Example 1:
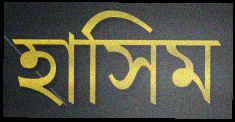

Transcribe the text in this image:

হাসিম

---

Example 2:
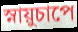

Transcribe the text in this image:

স্নায়ুচাপে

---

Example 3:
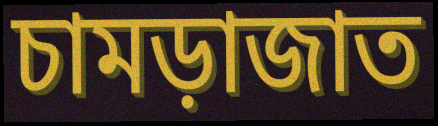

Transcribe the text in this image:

চামড়াজাত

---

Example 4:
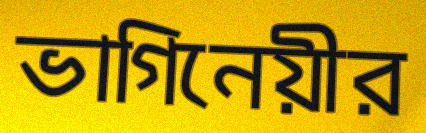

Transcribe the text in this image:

ভাগিনেয়ীর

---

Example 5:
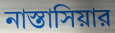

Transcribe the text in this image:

নাস্তাসিয়ার